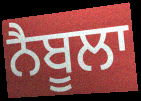
ਨੈਬੂਲਾ